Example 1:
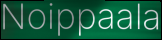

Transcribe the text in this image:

Noippaala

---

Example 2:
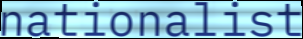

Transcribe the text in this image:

nationalist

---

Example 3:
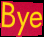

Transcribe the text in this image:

Bye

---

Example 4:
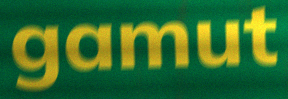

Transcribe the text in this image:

gamut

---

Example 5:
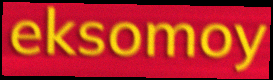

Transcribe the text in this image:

eksomoy